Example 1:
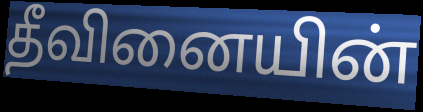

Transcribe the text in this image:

தீவினையின்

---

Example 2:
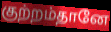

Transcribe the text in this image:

குற்றம்தானே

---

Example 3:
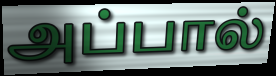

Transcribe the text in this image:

அப்பால்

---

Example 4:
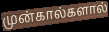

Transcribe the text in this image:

முன்கால்களால்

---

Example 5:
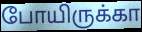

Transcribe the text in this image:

போயிருக்கா